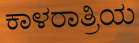
ಕಾಳರಾತ್ರಿಯ